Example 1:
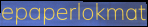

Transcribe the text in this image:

epaperlokmat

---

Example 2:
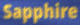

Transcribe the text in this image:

Sapphire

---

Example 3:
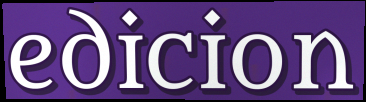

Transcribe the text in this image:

edicion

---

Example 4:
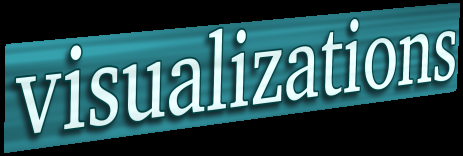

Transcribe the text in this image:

visualizations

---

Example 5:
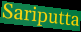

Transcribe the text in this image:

Sariputta